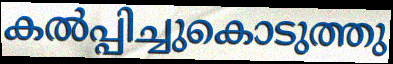
കൽപ്പിച്ചുകൊടുത്തു